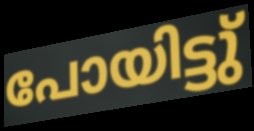
പോയിട്ടു്